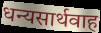
धन्यसार्थवाह